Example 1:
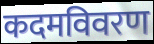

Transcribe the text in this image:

कदमविवरण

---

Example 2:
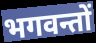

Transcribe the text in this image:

भगवन्तों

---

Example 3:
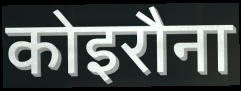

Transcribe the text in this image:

कोइरौना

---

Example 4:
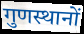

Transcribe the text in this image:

गुणस्थानों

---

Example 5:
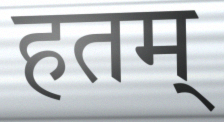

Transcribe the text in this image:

हतम्